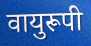
वायुरूपी